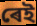
ৰেই